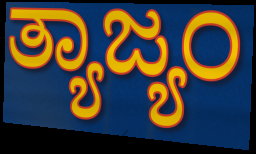
ತ್ಯಾಜ್ಯಂ